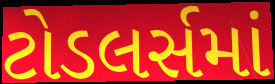
ટોડલર્સમાં